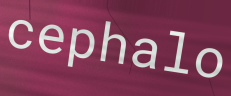
cephalo